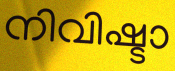
നിവിഷ്ടാ